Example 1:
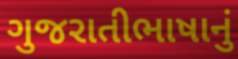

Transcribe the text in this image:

ગુજરાતીભાષાનું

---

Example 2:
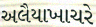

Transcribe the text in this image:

અલૈયાખાચરે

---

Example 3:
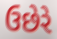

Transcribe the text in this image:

ઉછેરે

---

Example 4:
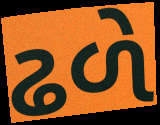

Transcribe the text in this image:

ઢળે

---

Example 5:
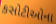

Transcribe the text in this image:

કસોટીઓના